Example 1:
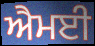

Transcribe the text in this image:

ਐਮਈ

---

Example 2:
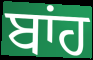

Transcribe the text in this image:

ਬਾਂਹ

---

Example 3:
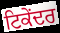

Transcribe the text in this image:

ਟਿਕੇਂਦਰ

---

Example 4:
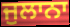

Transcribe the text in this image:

ਜੁਲਾਨਾ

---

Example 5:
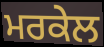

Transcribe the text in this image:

ਮਰਕੇਲ